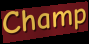
Champ